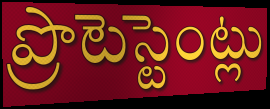
ప్రొటెస్టెంట్లు